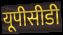
यूपीसीडी